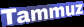
Tammuz